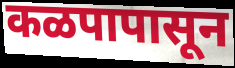
कळपापासून